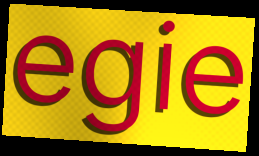
egie